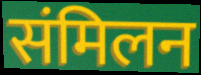
संमिलन